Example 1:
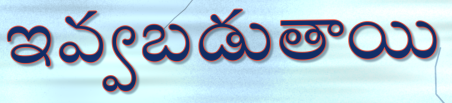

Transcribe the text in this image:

ఇవ్వబడుతాయి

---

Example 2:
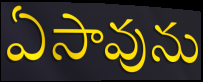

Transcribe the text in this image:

ఏసావును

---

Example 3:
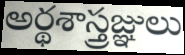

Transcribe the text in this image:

అర్థశాస్త్రజ్ఞులు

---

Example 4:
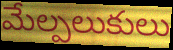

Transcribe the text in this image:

మేల్పలుకులు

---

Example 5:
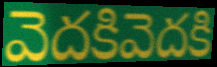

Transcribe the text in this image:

వెదకివెదకి